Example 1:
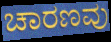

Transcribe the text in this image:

ಚಾರಣವು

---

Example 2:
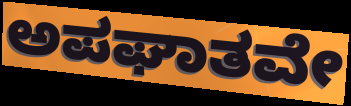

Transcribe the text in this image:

ಅಪಘಾತವೇ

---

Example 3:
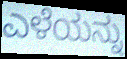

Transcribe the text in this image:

ಎಳೆಯನ್ನು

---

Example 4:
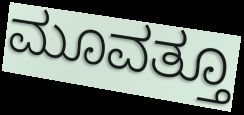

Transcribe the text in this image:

ಮೂವತ್ತೂ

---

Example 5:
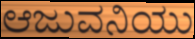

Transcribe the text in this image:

ಆಜುವನಿಯು